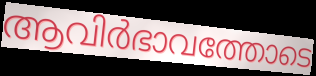
ആവിർഭാവത്തോടെ